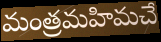
మంత్రమహిమచే